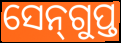
ସେନ୍‌ଗୁପ୍ତ